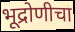
भूद्रोणीचा